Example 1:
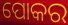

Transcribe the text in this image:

ପୋକର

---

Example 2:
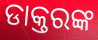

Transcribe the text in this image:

ଡାକ୍ତରଙ୍କ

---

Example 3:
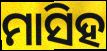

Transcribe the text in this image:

ମାସିହ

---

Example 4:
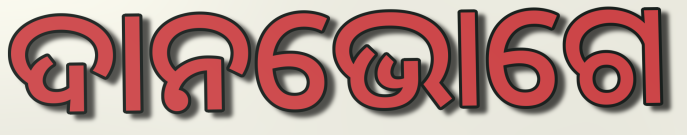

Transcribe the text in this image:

ଦାନଭୋଗେ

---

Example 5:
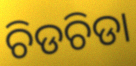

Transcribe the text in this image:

ଚିଡଚିଡା